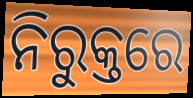
ନିରୁକ୍ତରେ